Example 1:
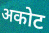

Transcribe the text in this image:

अकोट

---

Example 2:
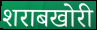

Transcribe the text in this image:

शराबखोरी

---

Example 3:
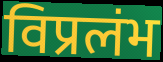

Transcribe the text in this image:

विप्रलंभ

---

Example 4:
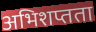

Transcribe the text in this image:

अभिशप्तता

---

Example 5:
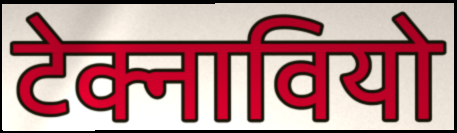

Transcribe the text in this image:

टेक्नावियो